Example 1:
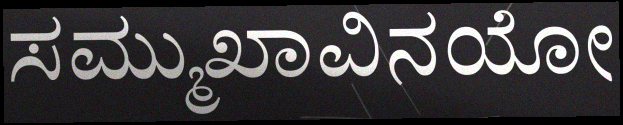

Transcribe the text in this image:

ಸಮ್ಮುಖಾವಿನಯೋ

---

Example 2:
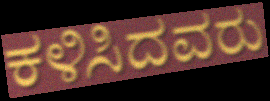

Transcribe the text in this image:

ಕಳಿಸಿದವರು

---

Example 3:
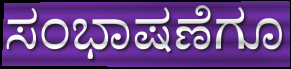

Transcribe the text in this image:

ಸಂಭಾಷಣೆಗೂ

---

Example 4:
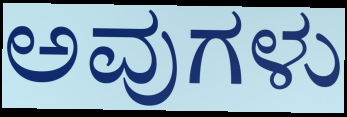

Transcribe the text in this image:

ಅವುಗಳು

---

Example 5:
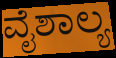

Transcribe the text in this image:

ವೈಶಾಲ್ಯ